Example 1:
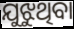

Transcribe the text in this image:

ଯୁଝୁଥିବା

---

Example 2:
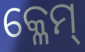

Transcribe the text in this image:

କ୍ଳେମ୍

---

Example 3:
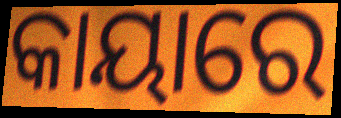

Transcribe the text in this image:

କାୟାରେ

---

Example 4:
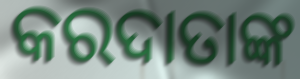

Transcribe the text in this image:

କରଦାତାଙ୍କ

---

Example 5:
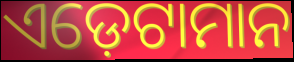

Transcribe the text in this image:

ଏଡ଼େଟାମାନ